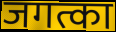
जगत्का